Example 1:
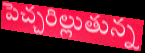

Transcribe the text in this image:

పెచ్చరిల్లుతున్న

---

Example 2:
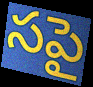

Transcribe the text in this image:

సపై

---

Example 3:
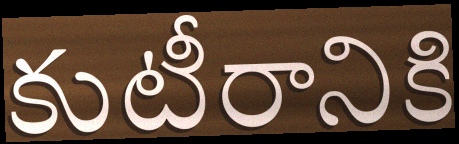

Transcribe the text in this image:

కుటీరానికి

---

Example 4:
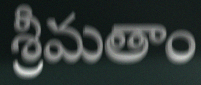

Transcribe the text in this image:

శ్రీమతాం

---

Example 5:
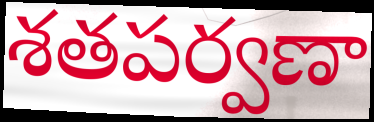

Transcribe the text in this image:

శతపర్వణా